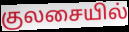
குலசையில்